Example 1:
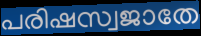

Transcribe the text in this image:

പരിഷസ്വജാതേ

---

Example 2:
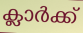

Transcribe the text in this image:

ക്ലാർക്ക്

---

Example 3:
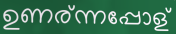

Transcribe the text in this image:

ഉണര്ന്നപ്പോള്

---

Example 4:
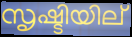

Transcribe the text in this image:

സൃഷ്ടിയില്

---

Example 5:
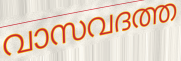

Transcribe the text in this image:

വാസവദത്ത